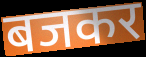
बजकर